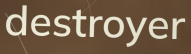
destroyer